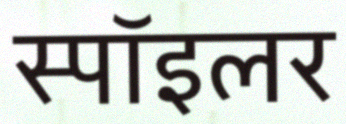
स्पॉइलर